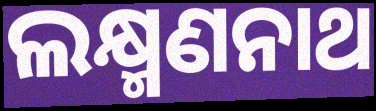
ଲକ୍ଷ୍ମଣନାଥ